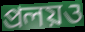
প্রলয়ও